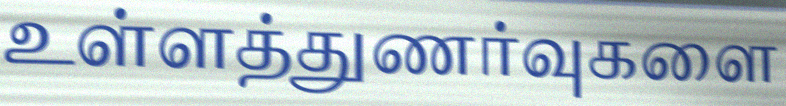
உள்ளத்துணர்வுகளை